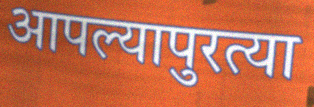
आपल्यापुरत्या